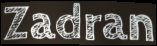
Zadran